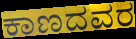
ಕಾಣದವರ